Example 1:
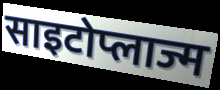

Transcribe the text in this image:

साइटोप्लाज्म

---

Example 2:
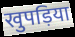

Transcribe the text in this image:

खुपड़िया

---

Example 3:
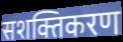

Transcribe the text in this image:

सशक्‍तिकरण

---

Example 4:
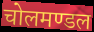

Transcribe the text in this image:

चोलमण्डल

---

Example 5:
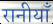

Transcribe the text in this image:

रानीयाँ